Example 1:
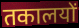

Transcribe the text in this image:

तकालयों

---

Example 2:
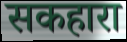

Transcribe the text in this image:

सकहारा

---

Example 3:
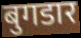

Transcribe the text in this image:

बुगडार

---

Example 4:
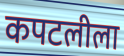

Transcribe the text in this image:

कपटलीला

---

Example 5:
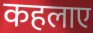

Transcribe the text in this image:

कहलाए